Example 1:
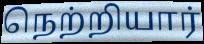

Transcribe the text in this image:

நெற்றியார்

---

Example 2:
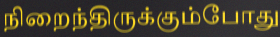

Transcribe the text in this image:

நிறைந்திருக்கும்போது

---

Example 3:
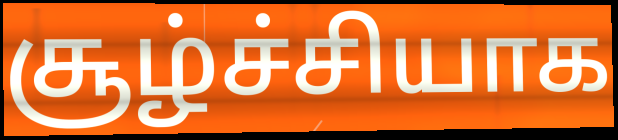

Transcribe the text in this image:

சூழ்ச்சியாக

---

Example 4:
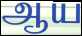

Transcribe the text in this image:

ஆய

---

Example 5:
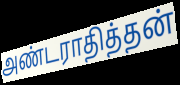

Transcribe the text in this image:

அண்டராதித்தன்